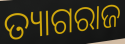
ତ୍ୟାଗରାଜ